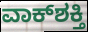
ವಾಕ್‌ಶಕ್ತಿ